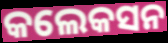
କଲେକସନ